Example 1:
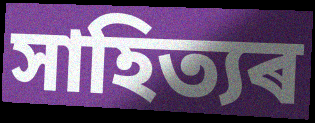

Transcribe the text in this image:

সাহিত্যৰ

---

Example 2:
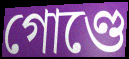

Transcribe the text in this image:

গোণ্ডে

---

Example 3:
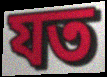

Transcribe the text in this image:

যত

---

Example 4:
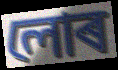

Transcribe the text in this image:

লোৰ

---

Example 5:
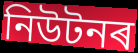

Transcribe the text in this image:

নিউটনৰ